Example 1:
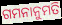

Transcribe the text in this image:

ଗମନାନୁମତି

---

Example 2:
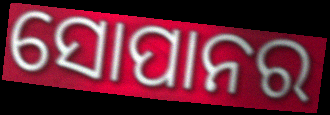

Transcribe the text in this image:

ସୋପାନର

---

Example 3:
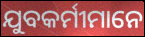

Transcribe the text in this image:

ଯୁବକର୍ମୀମାନେ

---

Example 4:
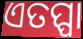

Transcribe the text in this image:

ଏତପ୍ପା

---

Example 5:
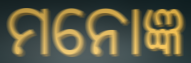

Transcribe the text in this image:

ମନୋଜ୍ଞ